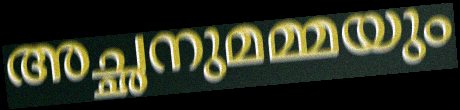
അച്ഛനുമമ്മയും